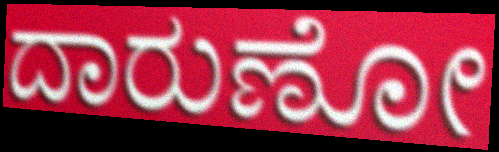
ದಾರುಣೋ